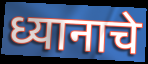
ध्यानाचे